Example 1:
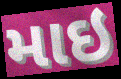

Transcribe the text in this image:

માઇ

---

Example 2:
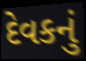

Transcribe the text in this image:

દેવકનું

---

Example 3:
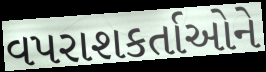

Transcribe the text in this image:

વપરાશકર્તાઓને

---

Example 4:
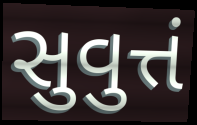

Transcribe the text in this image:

સુવુત્તં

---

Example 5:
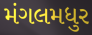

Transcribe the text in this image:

મંગલમધુર